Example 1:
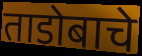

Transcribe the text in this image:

ताडोबाचे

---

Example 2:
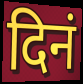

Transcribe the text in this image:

दिनं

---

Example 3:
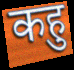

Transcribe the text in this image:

कहु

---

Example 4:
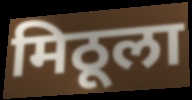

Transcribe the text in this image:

मिठूला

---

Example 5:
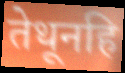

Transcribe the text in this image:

तेथूनहि